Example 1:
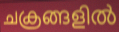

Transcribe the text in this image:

ചക്രങ്ങളിൽ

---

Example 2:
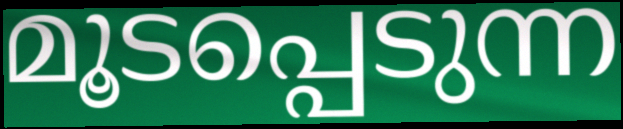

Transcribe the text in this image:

മൂടപ്പെടുന്ന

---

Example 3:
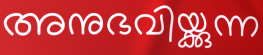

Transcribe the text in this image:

അനുഭവിയ്ക്കുന്ന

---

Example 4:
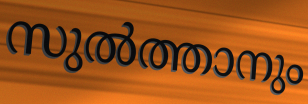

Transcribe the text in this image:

സുൽത്താനും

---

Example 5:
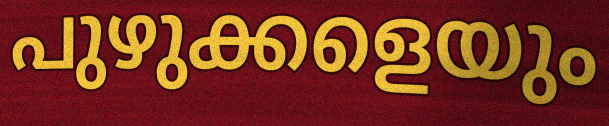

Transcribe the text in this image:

പുഴുക്കളെയും